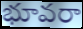
భూవరా